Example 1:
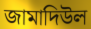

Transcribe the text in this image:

জামাদিউল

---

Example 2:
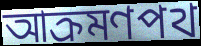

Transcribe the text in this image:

আক্রমণপথ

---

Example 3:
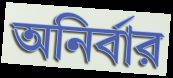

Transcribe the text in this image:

অনির্বার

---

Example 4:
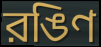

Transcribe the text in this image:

রঙিণ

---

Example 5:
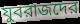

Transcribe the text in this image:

যুবরাজদের